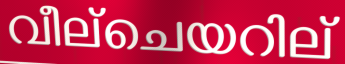
വീല്ചെയറില്